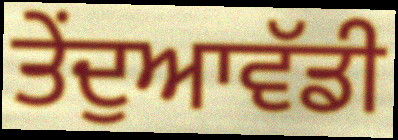
ਤੇਂਦੁਆਵੱਡੀ